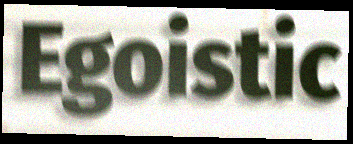
Egoistic